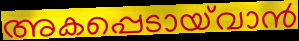
അകപ്പെടായ്‌വാൻ